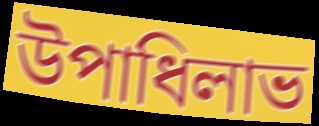
উপাধিলাভ